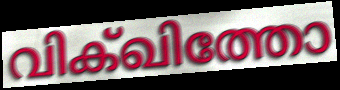
വിക്ഖിത്തോ